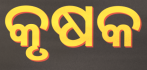
କୃଷକ